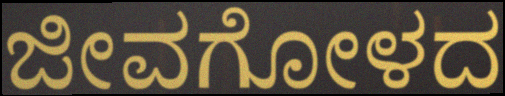
ಜೀವಗೋಳದ